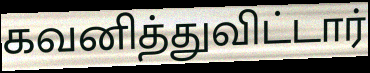
கவனித்துவிட்டார்